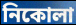
নিকোলা